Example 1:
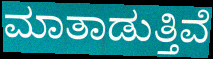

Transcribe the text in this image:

ಮಾತಾಡುತ್ತಿವೆ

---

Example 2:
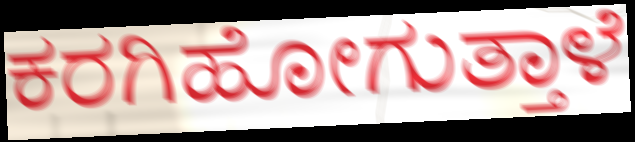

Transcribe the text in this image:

ಕರಗಿಹೋಗುತ್ತಾಳೆ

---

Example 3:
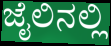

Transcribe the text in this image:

ಜೈಲಿನಲ್ಲಿ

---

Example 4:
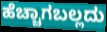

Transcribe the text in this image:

ಹೆಚ್ಚಾಗಬಲ್ಲದು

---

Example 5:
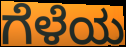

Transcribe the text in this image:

ಗೆಳೆಯ